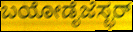
ಬಯೋಡೈಜೆಸ್ಟರ್